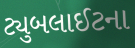
ટ્યુબલાઈટના